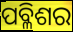
ପବ୍ଳିଶର